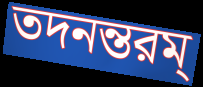
তদনন্তরম্